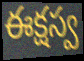
ఈక్షస్వ